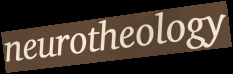
neurotheology